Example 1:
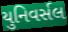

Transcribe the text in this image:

યુનિવર્સલ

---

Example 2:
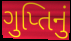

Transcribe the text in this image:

ગુપ્તિનું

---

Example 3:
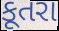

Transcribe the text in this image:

કૂતરા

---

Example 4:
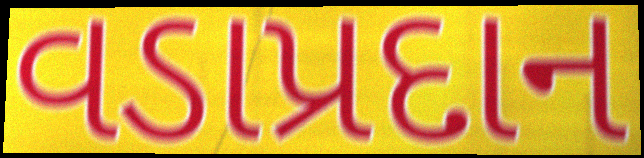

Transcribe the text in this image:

વડાપ્રદાન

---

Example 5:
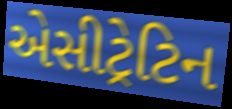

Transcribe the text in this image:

એસીટ્રેટિન